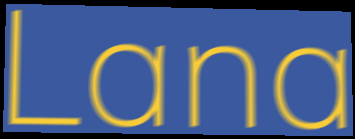
Lana